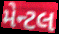
મેન્ટલ